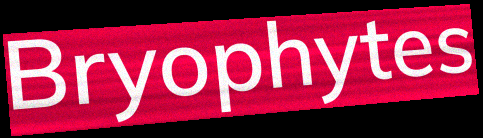
Bryophytes